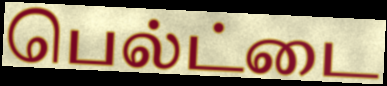
பெல்ட்டை